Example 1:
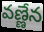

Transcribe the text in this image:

వణ్ణేన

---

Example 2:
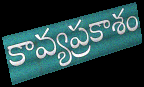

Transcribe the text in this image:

కావ్యప్రకాశం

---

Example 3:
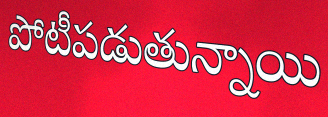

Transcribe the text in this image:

పోటీపడుతున్నాయి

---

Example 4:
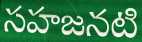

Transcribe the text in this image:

సహజనటి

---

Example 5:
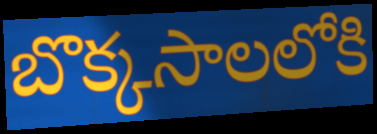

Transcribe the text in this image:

బొక్కసాలలోకి